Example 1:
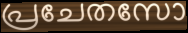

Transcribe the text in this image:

പ്രചേതസോ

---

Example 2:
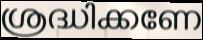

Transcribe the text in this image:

ശ്രദ്ധിക്കണേ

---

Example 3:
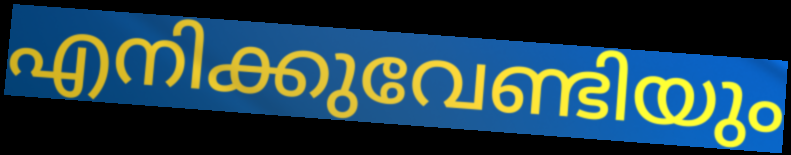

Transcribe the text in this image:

എനിക്കുവേണ്ടിയും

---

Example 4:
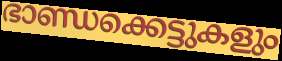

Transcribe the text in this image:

ഭാണ്ഡക്കെട്ടുകളും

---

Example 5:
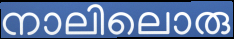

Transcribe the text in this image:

നാലിലൊരു